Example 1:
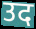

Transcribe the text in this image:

उद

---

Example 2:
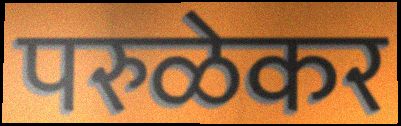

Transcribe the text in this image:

परुळेकर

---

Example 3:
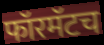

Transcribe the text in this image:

फॉरमॅटच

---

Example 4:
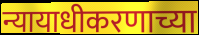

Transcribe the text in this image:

न्यायाधीकरणाच्या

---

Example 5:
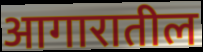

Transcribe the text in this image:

आगारातील